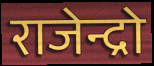
राजेन्द्रो